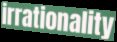
irrationality